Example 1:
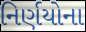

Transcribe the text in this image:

નિર્ણયોના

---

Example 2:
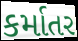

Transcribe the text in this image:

કર્માતર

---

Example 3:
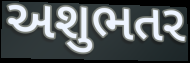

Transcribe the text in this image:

અશુભતર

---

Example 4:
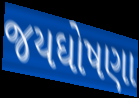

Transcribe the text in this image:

જયઘોષણા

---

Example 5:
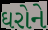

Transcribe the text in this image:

ઘરોને